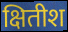
क्षितीश